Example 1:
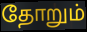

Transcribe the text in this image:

தோறும்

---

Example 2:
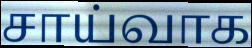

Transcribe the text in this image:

சாய்வாக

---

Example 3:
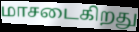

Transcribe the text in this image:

மாசடைகிறது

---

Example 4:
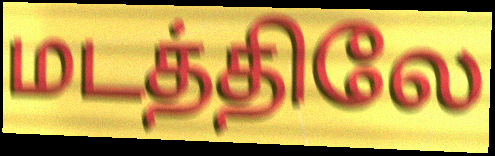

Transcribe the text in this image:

மடத்திலே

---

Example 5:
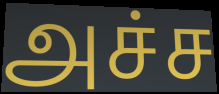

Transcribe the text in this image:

அச்ச